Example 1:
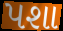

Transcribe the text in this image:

પશા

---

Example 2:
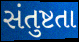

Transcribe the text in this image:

સંતુષ્ટતા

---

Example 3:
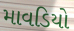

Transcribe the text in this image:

માવડિયો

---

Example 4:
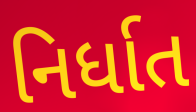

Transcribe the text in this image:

નિર્ધાત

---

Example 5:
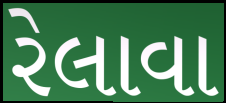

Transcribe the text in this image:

રેલાવા